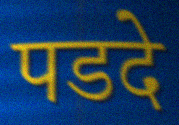
पडदे